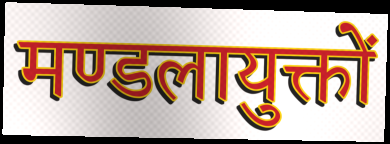
मण्डलायुक्तों